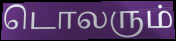
டொலரும்